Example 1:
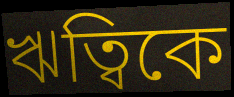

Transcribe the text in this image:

ঋত্বিকে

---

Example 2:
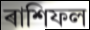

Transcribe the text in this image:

ৰাশিফল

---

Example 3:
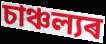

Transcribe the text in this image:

চাঞ্চল্যৰ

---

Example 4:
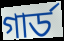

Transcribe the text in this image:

গাৰ্ড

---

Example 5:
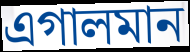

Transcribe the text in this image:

এগালমান